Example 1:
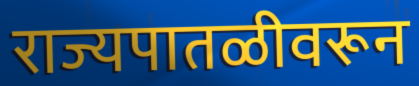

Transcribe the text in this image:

राज्यपातळीवरून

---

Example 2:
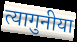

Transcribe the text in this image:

त्यागुनीया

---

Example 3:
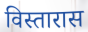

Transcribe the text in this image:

विस्तारास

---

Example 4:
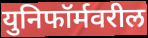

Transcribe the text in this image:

युनिफॉर्मवरील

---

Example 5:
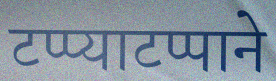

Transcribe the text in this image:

टप्प्याटप्पाने